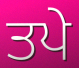
ਤਪੇ